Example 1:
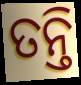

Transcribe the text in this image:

ତନ୍ତି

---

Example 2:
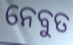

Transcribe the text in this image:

ନେବୁତ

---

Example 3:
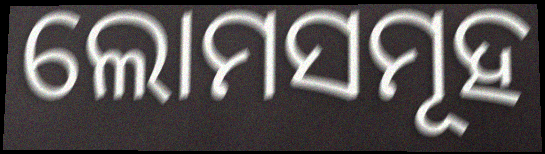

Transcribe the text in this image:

ଲୋମସମୂହ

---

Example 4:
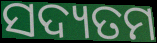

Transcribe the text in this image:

ସଦ୍ୟତମ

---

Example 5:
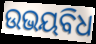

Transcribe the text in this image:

ଉଭୟବିଧ